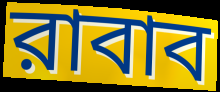
রাবাব